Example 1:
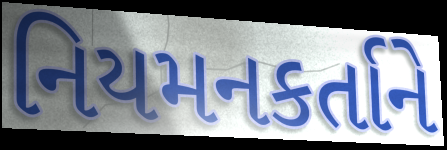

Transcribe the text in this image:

નિયમનકર્તાને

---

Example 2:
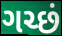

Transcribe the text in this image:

ગચ્છં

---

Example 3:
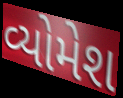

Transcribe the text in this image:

વ્યોમેશ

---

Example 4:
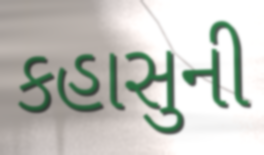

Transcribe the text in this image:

કહાસુની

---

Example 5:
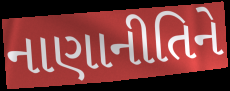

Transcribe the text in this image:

નાણાનીતિને